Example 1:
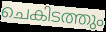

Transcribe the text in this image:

ചെകിടത്തും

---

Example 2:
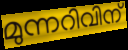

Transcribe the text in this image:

മുന്നറിവിന്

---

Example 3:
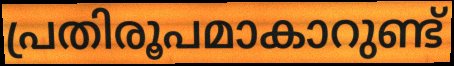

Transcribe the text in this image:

പ്രതിരൂപമാകാറുണ്ട്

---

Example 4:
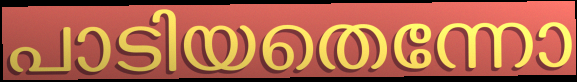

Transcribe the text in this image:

പാടിയതെന്നോ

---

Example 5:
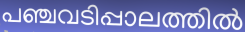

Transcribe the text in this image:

പഞ്ചവടിപ്പാലത്തിൽ